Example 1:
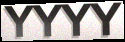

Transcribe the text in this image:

YYYY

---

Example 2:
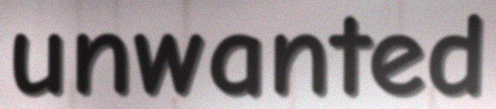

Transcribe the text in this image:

unwanted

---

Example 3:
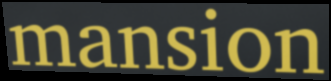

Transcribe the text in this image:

mansion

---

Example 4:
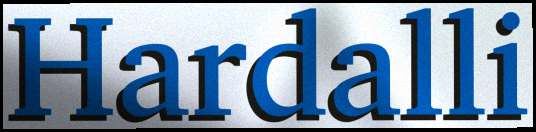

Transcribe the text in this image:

Hardalli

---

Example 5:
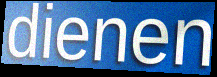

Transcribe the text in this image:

dienen